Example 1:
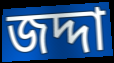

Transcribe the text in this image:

জদ্দা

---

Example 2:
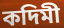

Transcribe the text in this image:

কদিমী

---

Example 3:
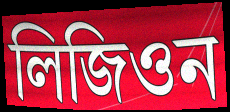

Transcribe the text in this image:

লিজিওন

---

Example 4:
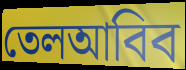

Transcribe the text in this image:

তেলআবিব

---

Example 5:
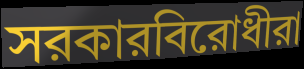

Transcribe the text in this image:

সরকারবিরোধীরা